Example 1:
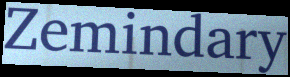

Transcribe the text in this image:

Zemindary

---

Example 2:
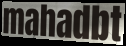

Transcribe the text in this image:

mahadbt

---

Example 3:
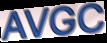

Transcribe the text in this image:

AVGC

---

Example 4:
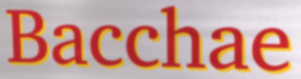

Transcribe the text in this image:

Bacchae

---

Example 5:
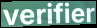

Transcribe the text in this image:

verifier